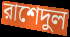
রাশেদুল